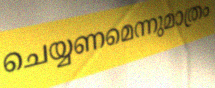
ചെയ്യണമെന്നുമാത്രം